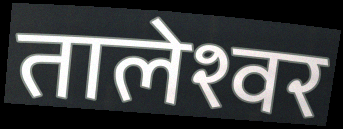
तालेश्वर